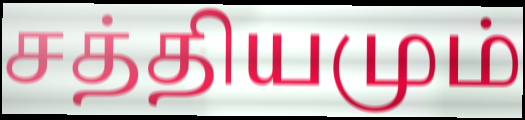
சத்தியமும்